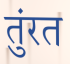
तुंरत